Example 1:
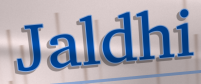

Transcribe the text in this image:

Jaldhi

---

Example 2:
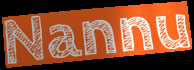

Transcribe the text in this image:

Nannu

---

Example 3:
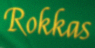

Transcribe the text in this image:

Rokkas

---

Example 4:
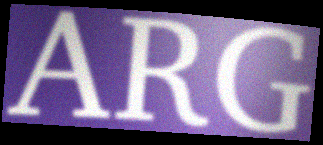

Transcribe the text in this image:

ARG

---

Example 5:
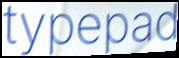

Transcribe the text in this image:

typepad